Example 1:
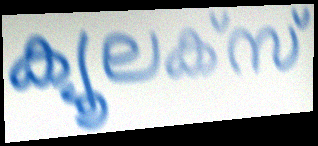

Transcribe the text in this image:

ക്യൂലക്സ്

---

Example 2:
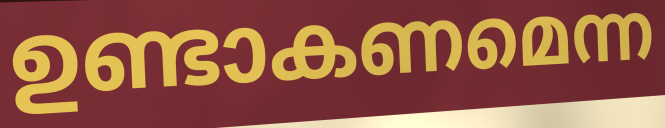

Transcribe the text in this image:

ഉണ്ടാകണമെന്ന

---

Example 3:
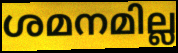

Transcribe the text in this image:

ശമനമില്ല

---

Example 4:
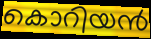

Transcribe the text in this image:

കൊറിയൻ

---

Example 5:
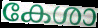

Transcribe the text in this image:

കേശാ